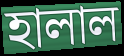
হালাল